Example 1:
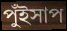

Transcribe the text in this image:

পুঁইসাপ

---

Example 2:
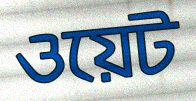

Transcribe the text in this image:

ওয়েট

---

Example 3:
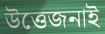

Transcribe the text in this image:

উত্তেজনাই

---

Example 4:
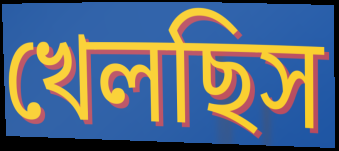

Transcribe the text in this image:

খেলছিস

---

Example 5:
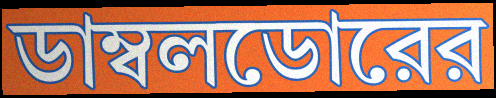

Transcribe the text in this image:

ডাম্বলডোরের